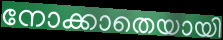
നോക്കാതെയായി